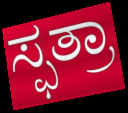
ಸ್ಫತ್ರಾ